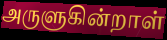
அருளுகின்றாள்